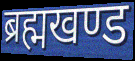
ब्रह्मखण्ड